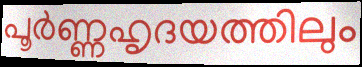
പൂർണ്ണഹൃദയത്തിലും